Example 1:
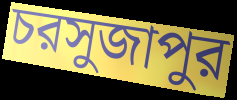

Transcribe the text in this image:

চরসুজাপুর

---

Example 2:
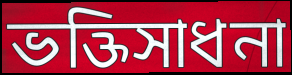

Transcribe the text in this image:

ভক্তিসাধনা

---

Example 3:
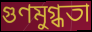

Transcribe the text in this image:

গুণমুগ্ধতা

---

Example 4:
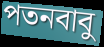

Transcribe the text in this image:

পতনবাবু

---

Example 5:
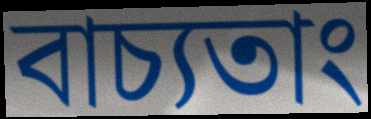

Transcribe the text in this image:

বাচ্যতাং